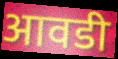
आवडी